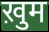
ख़ुम